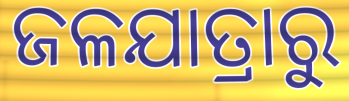
ଜଳଯାତ୍ରାରୁ